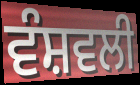
ਵੰਸ਼ਵਲੀ